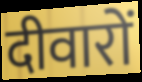
दीवारों